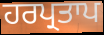
ਹਰਪ੍ਰਤਾਪ